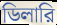
ডিলারি